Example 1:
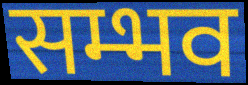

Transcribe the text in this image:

सम्भव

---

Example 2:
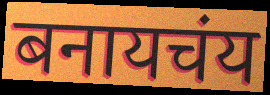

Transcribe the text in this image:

बनायचंय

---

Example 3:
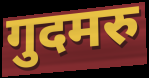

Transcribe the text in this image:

गुदमरु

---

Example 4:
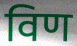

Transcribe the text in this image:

विण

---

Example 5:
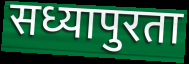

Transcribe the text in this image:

सध्यापुरता